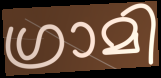
ഗ്രാമി